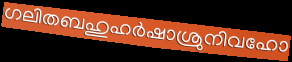
ഗലിതബഹുഹർഷാശ്രുനിവഹോ